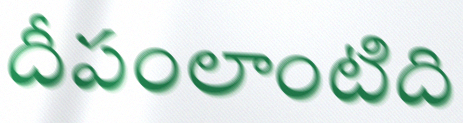
దీపంలాంటిది